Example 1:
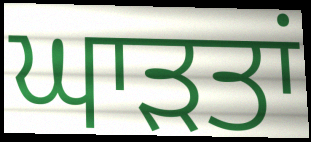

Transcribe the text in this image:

ਘਾਡ਼ਤਾਂ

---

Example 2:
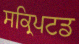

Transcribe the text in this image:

ਸਕ੍ਰਿਪਟਡ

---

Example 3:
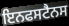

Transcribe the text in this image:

ਇਨਫਸਟੈਨਸ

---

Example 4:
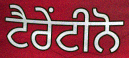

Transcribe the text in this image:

ਟੈਰੇਂਟੀਨੋ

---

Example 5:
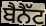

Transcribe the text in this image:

ਬੈਨੈੱਟ